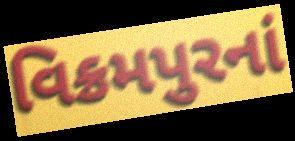
વિક્રમપુરનાં